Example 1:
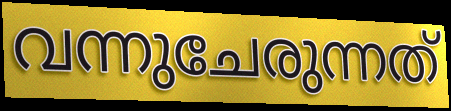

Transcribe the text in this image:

വന്നുചേരുന്നത്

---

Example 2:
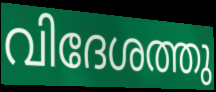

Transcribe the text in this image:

വിദേശത്തു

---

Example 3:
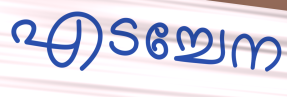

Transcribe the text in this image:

എടച്ചേന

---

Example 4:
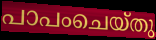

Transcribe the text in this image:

പാപംചെയ്തു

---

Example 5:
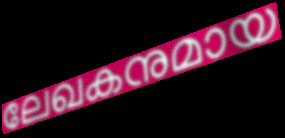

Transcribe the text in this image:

ലേഖകനുമായ